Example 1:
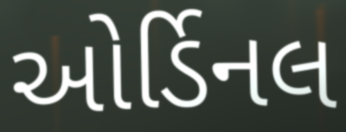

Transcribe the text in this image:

ઓર્ડિનલ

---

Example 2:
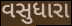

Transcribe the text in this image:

વસુધારા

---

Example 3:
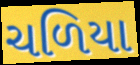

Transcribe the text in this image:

ચળિયા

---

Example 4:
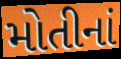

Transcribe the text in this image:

મોતીનાં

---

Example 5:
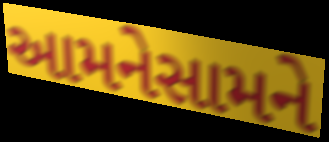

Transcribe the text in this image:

આમનેસામને